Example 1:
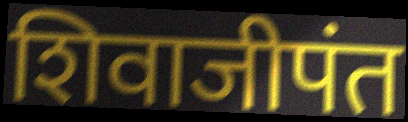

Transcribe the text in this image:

शिवाजीपंत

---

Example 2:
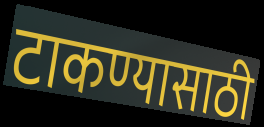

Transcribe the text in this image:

टाकण्यासाठी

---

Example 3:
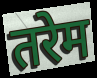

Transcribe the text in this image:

तरेम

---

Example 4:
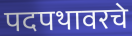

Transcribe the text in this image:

पदपथावरचे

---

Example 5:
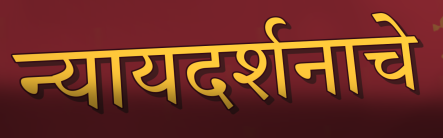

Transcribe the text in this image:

न्यायदर्शनाचे